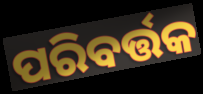
ପରିବର୍ତ୍ତକ